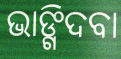
ଭାଙ୍ଗିଦବା